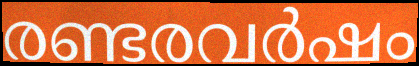
രണ്ടരവർഷം